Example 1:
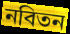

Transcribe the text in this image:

নবিতন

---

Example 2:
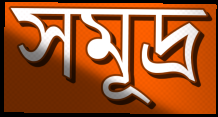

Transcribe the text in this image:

সমূদ্র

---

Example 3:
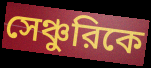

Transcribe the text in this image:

সেঞ্চুরিকে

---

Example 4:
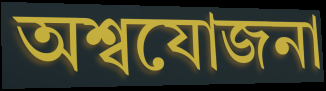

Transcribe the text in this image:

অশ্বযোজনা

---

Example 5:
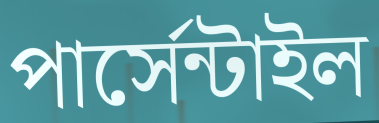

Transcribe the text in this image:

পার্সেন্টাইল